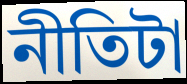
নীতিটা